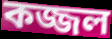
কজ্জল